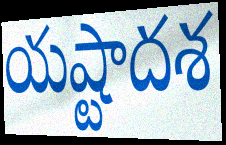
యష్టాదశ